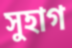
সুহাগ